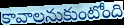
కావాలనుకుంటోంది